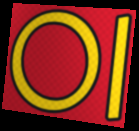
ଠା